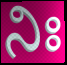
ನಿಃ